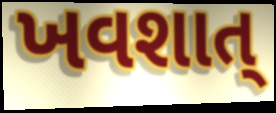
ખવશાત્